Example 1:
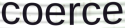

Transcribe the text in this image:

coerce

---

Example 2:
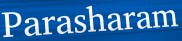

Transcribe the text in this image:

Parasharam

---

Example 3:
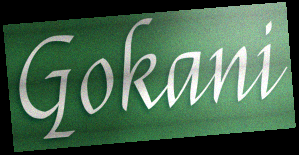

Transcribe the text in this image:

Gokani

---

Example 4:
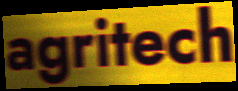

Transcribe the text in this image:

agritech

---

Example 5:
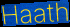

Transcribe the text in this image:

Haath